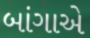
બાંગાએ